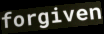
forgiven